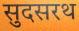
सुदसरथ